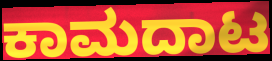
ಕಾಮದಾಟ